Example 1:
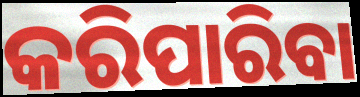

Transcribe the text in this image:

କରିପାରିବା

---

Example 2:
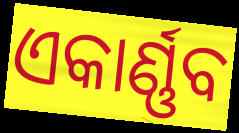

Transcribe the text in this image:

ଏକାର୍ଣ୍ଣବ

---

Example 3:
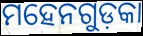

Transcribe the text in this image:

ମହେନଗୁଡ଼କା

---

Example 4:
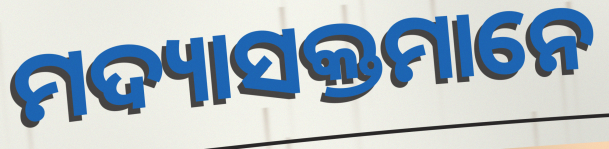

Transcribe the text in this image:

ମଦ୍ୟାସକ୍ତମାନେ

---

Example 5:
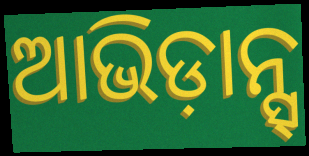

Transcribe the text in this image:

ଆଭିଡ଼ାନ୍ସ୍